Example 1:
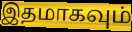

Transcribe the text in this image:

இதமாகவும்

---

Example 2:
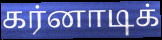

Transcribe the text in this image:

கர்னாடிக்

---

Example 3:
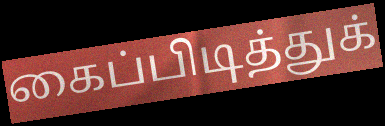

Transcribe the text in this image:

கைப்பிடித்துக்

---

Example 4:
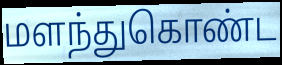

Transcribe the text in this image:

மளந்துகொண்ட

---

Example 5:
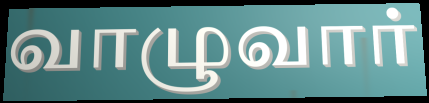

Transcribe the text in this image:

வாழுவார்